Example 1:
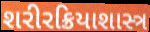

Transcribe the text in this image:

શરીરક્રિયાશાસ્ત્ર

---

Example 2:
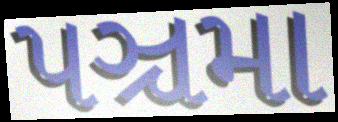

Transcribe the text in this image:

પઞ્ચમા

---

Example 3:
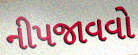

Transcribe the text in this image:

નીપજાવવો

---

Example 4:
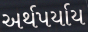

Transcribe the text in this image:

અર્થપર્યાય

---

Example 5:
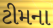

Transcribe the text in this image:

ટીમના